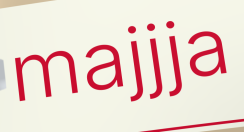
majjja